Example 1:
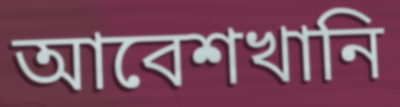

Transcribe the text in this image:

আবেশখানি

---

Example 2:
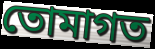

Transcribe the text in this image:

তোমাগত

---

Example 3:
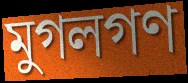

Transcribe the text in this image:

মুগলগণ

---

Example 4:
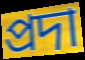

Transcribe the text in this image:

প্রদা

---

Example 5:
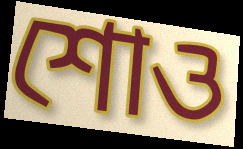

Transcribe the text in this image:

শোও